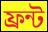
ফ্ৰন্ট